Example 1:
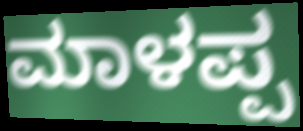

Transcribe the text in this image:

ಮಾಳಪ್ಪ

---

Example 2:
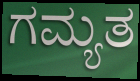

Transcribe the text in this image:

ಗಮ್ಯತ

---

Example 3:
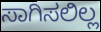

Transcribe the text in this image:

ಸಾಗಿಸಲಿಲ್ಲ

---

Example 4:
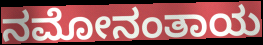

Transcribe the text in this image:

ನಮೋನಂತಾಯ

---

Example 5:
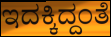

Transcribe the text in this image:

ಇದಕ್ಕಿದ್ದಂತೆ